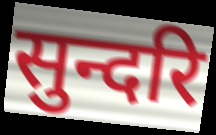
सुन्दरि